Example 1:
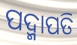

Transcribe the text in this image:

ପଦ୍ମାପତି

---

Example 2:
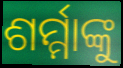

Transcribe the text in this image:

ଶର୍ମ୍ମାଙ୍କୁ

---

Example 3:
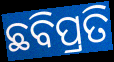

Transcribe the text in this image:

ଛବିପ୍ରତି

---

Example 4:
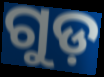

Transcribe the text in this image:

ଗୁଡ଼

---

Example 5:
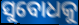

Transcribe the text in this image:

ସୁବୋଧକୁ